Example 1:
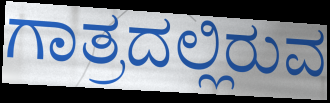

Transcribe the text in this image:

ಗಾತ್ರದಲ್ಲಿರುವ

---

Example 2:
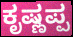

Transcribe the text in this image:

ಕೃಷ್ಣಪ್ಪ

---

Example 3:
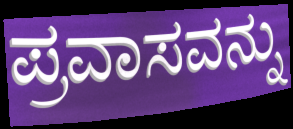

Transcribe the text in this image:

ಪ್ರವಾಸವನ್ನು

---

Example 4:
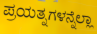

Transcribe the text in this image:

ಪ್ರಯತ್ನಗಳನ್ನೆಲ್ಲಾ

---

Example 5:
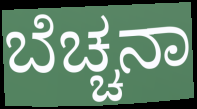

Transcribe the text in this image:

ಬೆಚ್ಚನಾ